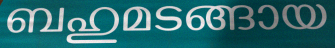
ബഹുമടങ്ങായ